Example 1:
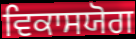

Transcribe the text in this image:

ਵਿਕਾਸਯੋਗ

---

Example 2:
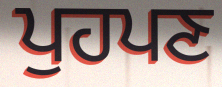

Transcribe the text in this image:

ਪੁਹਪਣ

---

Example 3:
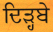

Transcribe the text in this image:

ਦਿੜ੍ਹਬੇ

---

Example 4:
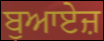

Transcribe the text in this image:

ਬੁਆਏਜ਼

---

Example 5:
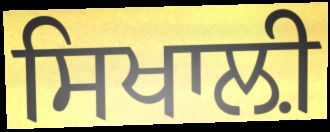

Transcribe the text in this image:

ਸਿਖਾਲ਼ੀ